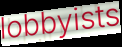
lobbyists